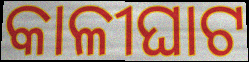
କାଳୀଘାଟ